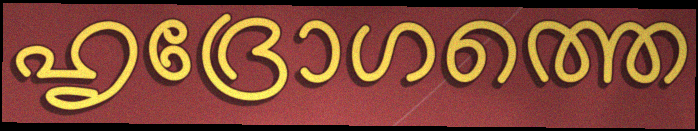
ഹൃദ്രോഗത്തെ